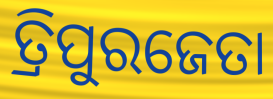
ତ୍ରିପୁରଜେତା